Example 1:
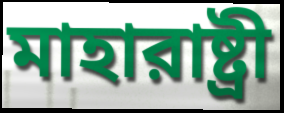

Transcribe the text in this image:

মাহারাষ্ট্রী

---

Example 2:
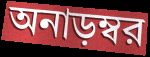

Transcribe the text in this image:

অনাড়ম্বর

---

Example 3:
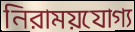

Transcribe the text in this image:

নিরাময়যোগ্য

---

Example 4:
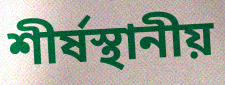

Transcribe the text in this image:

শীর্ষস্থানীয়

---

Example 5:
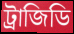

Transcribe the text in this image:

ট্রাজিডি